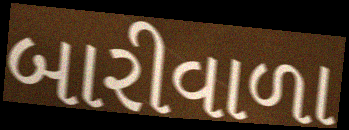
બારીવાળા